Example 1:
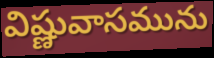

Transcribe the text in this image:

విష్ణువాసమును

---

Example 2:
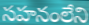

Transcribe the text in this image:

సహనంలేని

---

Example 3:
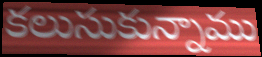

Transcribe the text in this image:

కలుసుకున్నాము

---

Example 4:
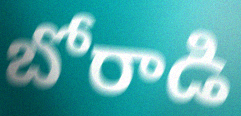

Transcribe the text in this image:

బోరాడి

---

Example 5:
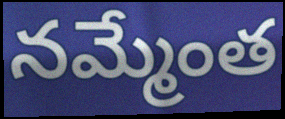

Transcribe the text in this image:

నమ్మేంత